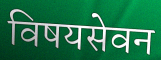
विषयसेवन